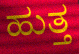
ಹುತ್ತ